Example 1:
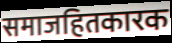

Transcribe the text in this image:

समाजहितकारक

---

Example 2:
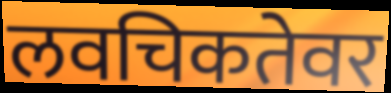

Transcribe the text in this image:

लवचिकतेवर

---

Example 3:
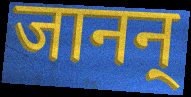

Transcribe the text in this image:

जानन्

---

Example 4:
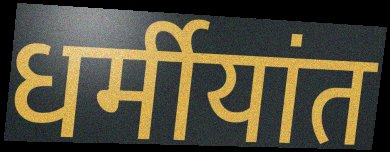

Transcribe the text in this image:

धर्मीयांत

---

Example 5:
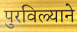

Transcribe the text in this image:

पुरविल्याने